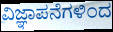
ವಿಜ್ಞಾಪನೆಗಳಿಂದ